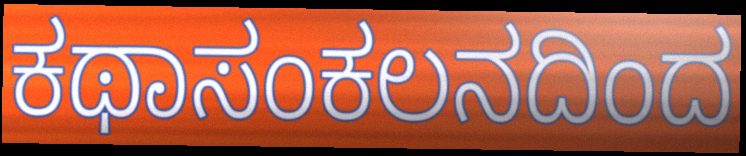
ಕಥಾಸಂಕಲನದಿಂದ